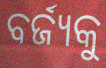
ବର୍ଜ୍ୟକୁ